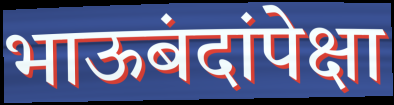
भाऊबंदांपेक्षा